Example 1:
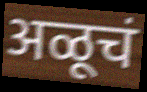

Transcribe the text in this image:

अळूचं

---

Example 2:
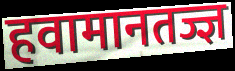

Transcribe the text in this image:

हवामानतज्ज्ञ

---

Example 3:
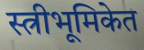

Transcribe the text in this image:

स्त्रीभूमिकेत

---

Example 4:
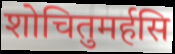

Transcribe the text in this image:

शोचितुमर्हसि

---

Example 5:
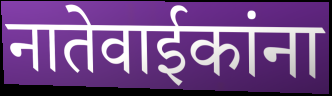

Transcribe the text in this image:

नातेवाईकांना